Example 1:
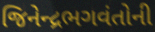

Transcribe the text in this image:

જિનેન્દ્રભગવંતોની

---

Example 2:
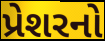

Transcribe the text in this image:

પ્રેશરનો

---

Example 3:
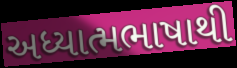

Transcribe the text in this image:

અધ્યાત્મભાષાથી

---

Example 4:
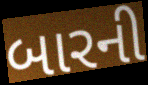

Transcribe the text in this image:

બારની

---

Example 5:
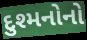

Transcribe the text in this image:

દુશ્મનોનો